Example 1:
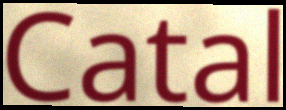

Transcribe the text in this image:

Catal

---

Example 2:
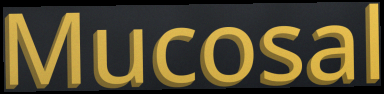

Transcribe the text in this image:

Mucosal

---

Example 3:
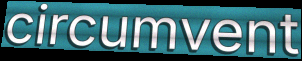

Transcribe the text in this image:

circumvent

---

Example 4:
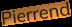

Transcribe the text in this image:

Pierrend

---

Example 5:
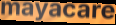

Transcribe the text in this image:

mayacare